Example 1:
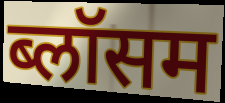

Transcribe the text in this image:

ब्लॉसम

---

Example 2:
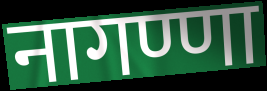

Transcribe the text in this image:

नागण्णा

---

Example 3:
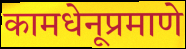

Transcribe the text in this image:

कामधेनूप्रमाणे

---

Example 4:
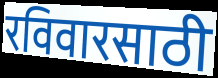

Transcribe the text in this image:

रविवारसाठी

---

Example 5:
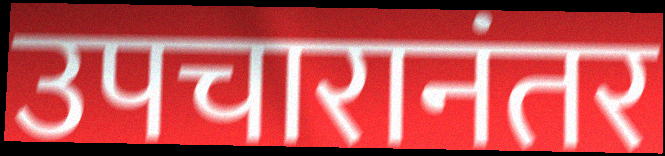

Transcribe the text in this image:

उपचारानंतर